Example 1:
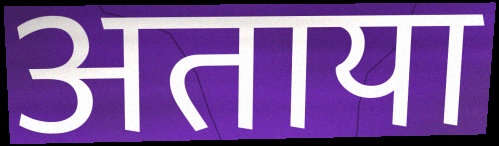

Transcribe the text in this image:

अताया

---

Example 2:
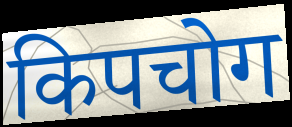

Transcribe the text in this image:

किपचोग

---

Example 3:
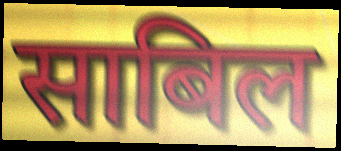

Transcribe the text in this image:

साबिल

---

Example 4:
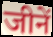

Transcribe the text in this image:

जीनें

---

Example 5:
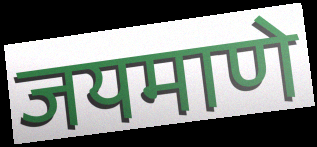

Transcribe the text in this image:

जयमाणे